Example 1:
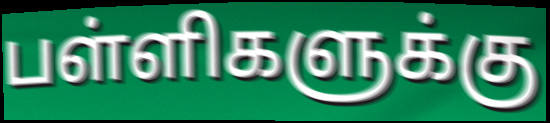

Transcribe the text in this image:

பள்ளிகளுக்கு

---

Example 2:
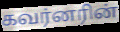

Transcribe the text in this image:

கவர்னரின்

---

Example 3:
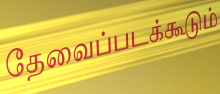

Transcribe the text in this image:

தேவைப்படக்கூடும்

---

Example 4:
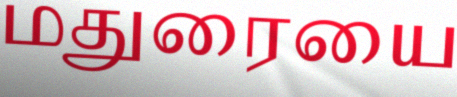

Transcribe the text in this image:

மதுரையை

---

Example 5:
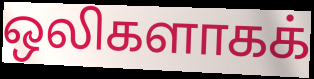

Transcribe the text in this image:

ஒலிகளாகக்